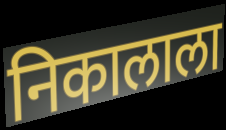
निकालाला